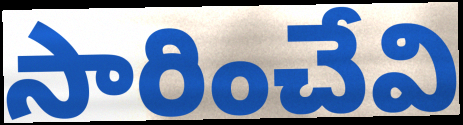
సారించేవి